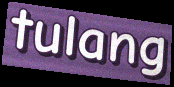
tulang